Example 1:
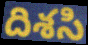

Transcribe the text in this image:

దిశసి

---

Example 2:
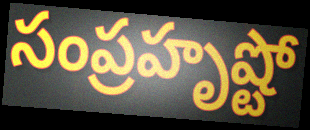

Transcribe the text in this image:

సంప్రహృష్టో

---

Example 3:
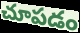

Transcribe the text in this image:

చూపడం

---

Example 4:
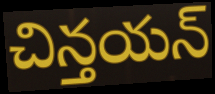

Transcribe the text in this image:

చిన్తయన్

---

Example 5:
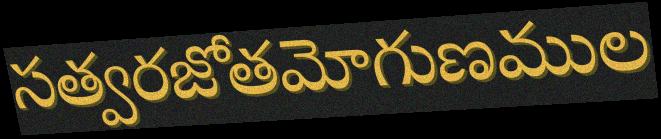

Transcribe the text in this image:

సత్వరజోతమోగుణముల